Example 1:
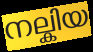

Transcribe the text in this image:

നല്കിയ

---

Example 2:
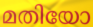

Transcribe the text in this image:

മതിയോ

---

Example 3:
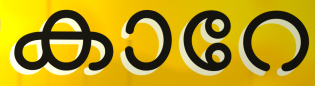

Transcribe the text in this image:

കാറേ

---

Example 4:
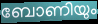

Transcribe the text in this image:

ബോണിയും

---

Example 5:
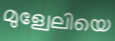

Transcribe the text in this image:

മുള്വേലിയെ